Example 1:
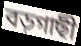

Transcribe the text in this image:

বড়গাছী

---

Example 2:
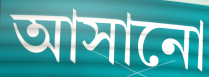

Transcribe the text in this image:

আসানো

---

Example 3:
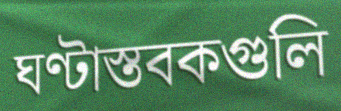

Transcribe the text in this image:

ঘণ্টাস্তবকগুলি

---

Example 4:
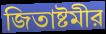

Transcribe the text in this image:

জিতাষ্টমীর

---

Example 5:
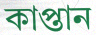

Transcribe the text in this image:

কাপ্তান